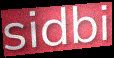
sidbi